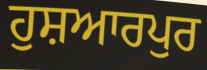
ਹੁਸ਼ਆਰਪੁਰ